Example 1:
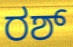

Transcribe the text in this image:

ರಶ್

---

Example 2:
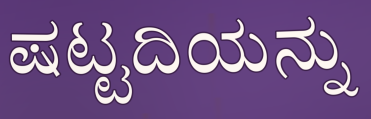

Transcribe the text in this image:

ಷಟ್ಟದಿಯನ್ನು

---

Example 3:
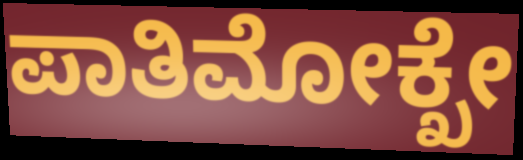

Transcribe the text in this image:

ಪಾತಿಮೋಕ್ಖೇ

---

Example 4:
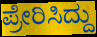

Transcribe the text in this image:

ಪ್ರೇರಿಸಿದ್ದು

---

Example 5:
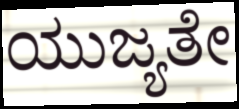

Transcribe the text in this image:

ಯುಜ್ಯತೇ